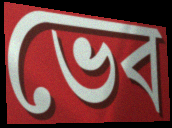
ভেব